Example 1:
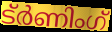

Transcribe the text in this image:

ട്ർണിംഗ്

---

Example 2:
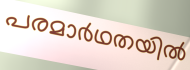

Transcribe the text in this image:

പരമാർഥതയിൽ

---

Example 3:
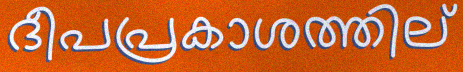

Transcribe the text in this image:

ദീപപ്രകാശത്തില്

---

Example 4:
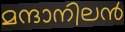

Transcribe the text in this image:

മന്ദാനിലൻ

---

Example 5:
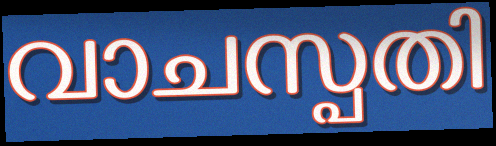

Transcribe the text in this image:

വാചസ്പതി